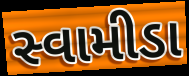
સ્વામીડા